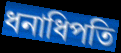
ধনাধিপতি